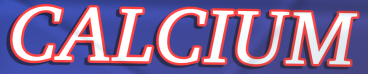
CALCIUM